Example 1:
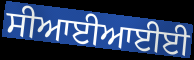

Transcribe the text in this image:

ਸੀਆਈਆਈਈ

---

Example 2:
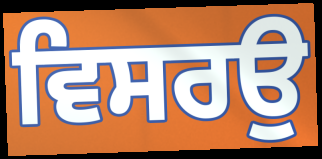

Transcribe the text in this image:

ਵਿਸਰਉ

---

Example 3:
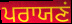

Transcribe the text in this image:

ਪਰਾਯਣਂ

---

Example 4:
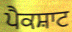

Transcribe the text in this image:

ਪੈਕਸ਼ਾਟ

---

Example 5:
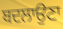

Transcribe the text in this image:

ਬਦਲਾਉਣਾ